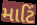
માટિં